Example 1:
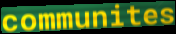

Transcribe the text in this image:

communites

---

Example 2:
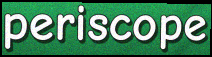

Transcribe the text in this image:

periscope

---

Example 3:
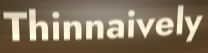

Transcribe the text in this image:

Thinnaively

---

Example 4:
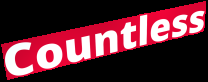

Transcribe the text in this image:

Countless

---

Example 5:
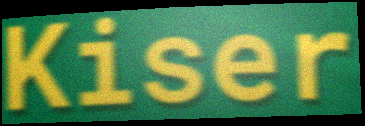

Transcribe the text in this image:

Kiser